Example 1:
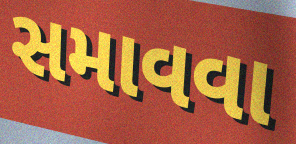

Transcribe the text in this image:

સમાવવા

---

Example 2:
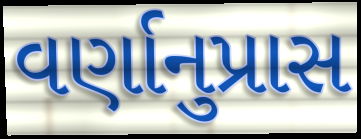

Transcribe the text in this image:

વર્ણાનુપ્રાસ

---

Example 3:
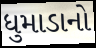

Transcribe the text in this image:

ધુમાડાનો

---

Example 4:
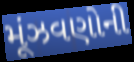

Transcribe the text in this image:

મૂંઝવણોની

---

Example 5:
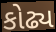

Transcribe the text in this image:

કોઢ્ય